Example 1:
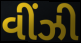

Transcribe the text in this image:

વીંઝી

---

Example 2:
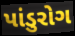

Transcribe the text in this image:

પાંડુરોગ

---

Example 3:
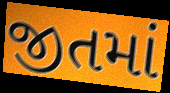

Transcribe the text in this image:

જીતમાં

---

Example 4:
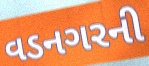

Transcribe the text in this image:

વડનગરની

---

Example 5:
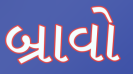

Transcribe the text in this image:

બ્રાવો